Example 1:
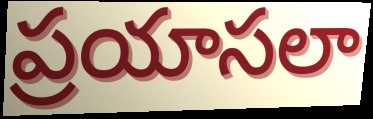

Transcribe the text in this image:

ప్రయాసలా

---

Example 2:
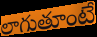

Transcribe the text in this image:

లాగుతూంటే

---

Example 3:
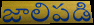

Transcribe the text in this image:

జాలిపడి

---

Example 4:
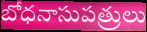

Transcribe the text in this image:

బోధనాసుపత్రులు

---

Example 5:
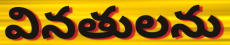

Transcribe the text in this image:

వినతులను